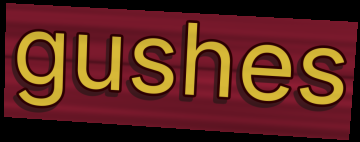
gushes